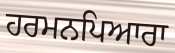
ਹਰਮਨਪਿਆਰਾ